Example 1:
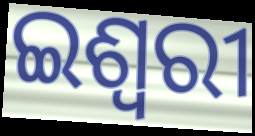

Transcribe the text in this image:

ଇଶ୍ୱରୀ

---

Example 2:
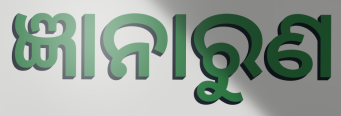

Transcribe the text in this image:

ଜ୍ଞାନାରୁଣ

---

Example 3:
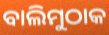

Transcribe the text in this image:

ବାଲିମୁଠାକ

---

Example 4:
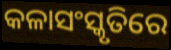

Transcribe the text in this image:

କଳାସଂସ୍କୃତିରେ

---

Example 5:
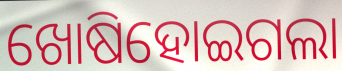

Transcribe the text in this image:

ଖୋଷିହୋଇଗଲା